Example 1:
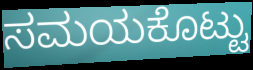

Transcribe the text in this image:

ಸಮಯಕೊಟ್ಟು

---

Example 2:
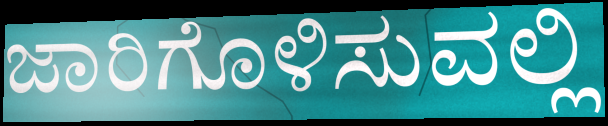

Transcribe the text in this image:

ಜಾರಿಗೊಳಿಸುವಲ್ಲಿ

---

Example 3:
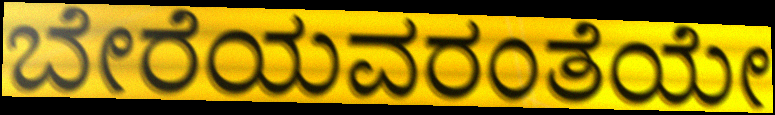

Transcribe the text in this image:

ಬೇರೆಯವರಂತೆಯೇ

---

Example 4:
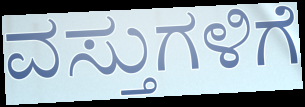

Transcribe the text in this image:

ವಸ್ತುಗಳಿಗೆ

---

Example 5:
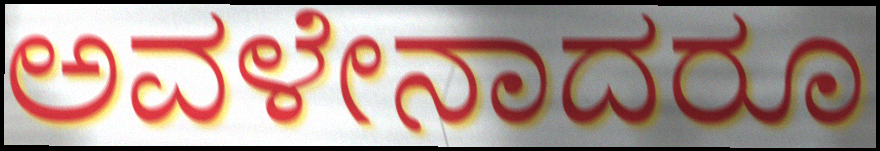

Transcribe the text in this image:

ಅವಳೇನಾದರೂ